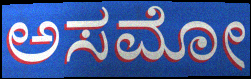
ಅಸಮೋ